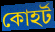
কোহর্ট